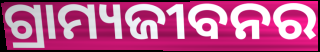
ଗ୍ରାମ୍ୟଜୀବନର